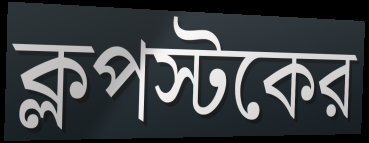
ক্লপস্টকের